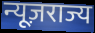
न्यूज़राज्य